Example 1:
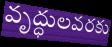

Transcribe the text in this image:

వృద్ధులవరకు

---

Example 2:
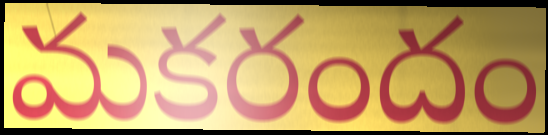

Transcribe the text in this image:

మకరందం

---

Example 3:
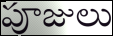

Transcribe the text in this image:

పూజులు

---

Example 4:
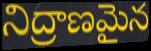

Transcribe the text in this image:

నిద్రాణమైన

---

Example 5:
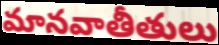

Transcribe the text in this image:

మానవాతీతులు